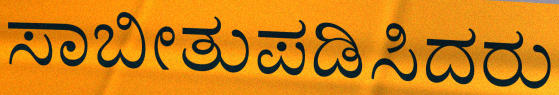
ಸಾಬೀತುಪಡಿಸಿದರು